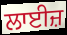
ਲਾਈਜ਼